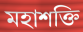
মহাশক্তি